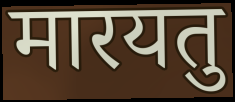
मारयतु